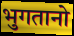
भुगतानो